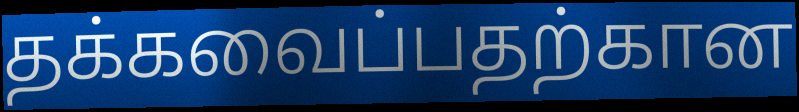
தக்கவைப்பதற்கான